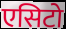
एसिटो